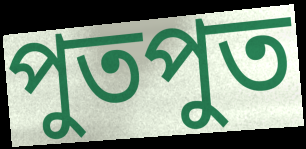
পুতপুত